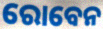
ରୋବେନ